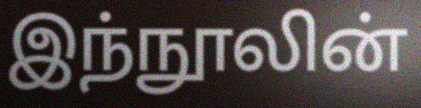
இந்நூலின்